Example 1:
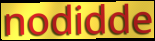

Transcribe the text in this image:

nodidde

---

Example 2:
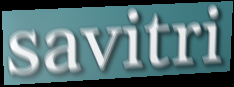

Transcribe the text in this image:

savitri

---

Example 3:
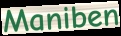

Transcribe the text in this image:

Maniben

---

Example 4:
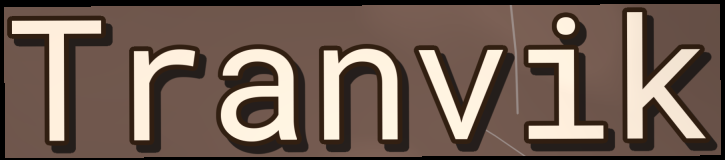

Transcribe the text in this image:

Tranvik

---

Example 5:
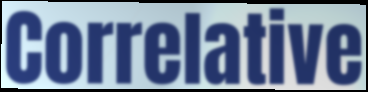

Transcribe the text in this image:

Correlative